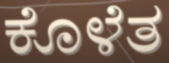
ಕೊಳೆತ